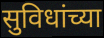
सुविधांच्या